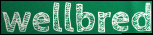
wellbred